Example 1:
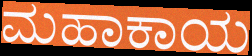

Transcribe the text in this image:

ಮಹಾಕಾಯ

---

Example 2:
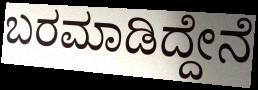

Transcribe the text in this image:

ಬರಮಾಡಿದ್ದೇನೆ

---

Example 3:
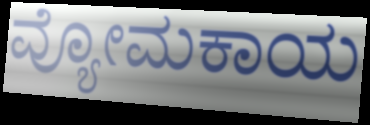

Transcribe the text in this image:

ವ್ಯೋಮಕಾಯ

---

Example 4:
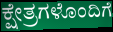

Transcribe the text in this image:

ಕ್ಷೇತ್ರಗಳೊಂದಿಗೆ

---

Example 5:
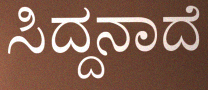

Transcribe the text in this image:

ಸಿದ್ದನಾದೆ